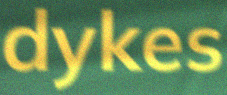
dykes